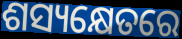
ଶସ୍ୟକ୍ଷେତରେ